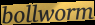
bollworm